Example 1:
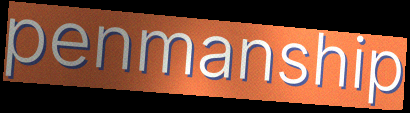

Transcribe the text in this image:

penmanship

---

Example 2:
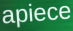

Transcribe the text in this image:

apiece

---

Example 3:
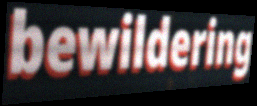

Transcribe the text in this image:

bewildering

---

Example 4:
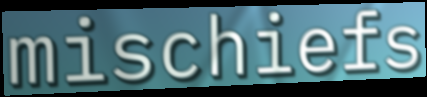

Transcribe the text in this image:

mischiefs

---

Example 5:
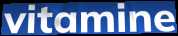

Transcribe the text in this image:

vitamine